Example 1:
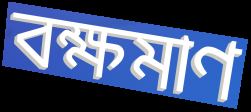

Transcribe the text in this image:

বক্ষমাণ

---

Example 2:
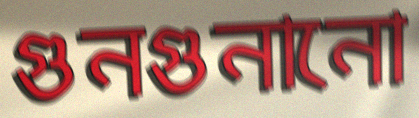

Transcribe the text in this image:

গুনগুনানো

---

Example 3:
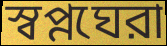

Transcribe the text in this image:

স্বপ্নঘেরা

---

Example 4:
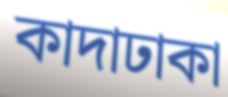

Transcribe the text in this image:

কাদাঢাকা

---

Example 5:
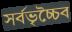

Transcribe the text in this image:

সর্বভৃচ্চৈব